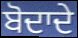
ਬੋਦਾਦੇ